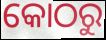
କୋଠରୁ